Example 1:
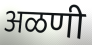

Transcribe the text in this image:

अळणी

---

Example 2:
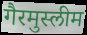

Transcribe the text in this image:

गैरमुस्लीम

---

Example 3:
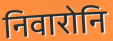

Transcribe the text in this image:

निवारोनि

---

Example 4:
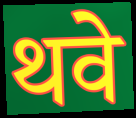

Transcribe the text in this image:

थवे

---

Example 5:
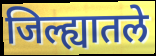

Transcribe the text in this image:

जिल्ह्यातले